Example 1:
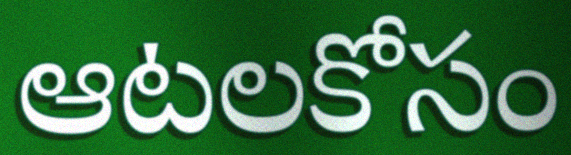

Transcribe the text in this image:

ఆటలకోసం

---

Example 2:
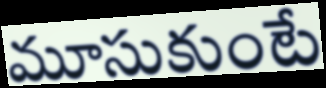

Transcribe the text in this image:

మూసుకుంటే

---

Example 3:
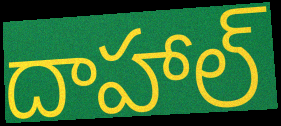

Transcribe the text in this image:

దాహాల్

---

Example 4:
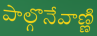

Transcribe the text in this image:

పాల్గొనేవాణ్ణి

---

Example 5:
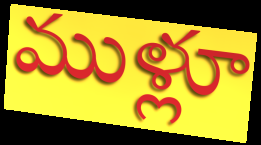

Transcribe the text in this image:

ముళ్లూ